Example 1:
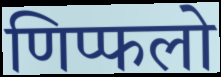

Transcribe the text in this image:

णिप्फलो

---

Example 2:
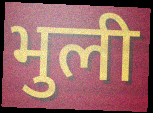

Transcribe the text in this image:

भुली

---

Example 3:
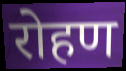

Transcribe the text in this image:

रोहण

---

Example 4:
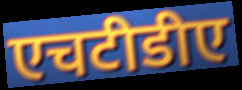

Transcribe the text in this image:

एचटीडीए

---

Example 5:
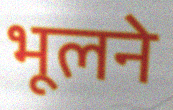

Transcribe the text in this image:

भूलने